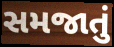
સમજાતું